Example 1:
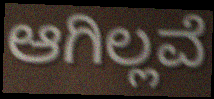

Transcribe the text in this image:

ಆಗಿಲ್ಲವೆ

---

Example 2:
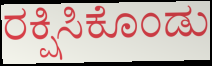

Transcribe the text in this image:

ರಕ್ಷಿಸಿಕೊಂಡು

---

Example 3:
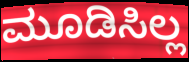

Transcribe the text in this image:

ಮೂಡಿಸಿಲ್ಲ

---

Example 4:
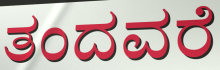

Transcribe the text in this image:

ತಂದವರೆ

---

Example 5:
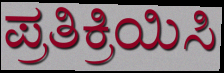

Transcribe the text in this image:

ಪ್ರತಿಕ್ರಿಯಿಸಿ